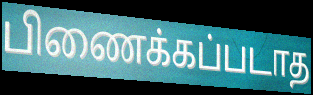
பிணைக்கப்படாத